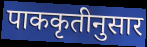
पाककृतीनुसार